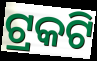
ଟ୍ରକଟି